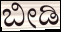
ಬೀಡಿ